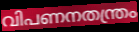
വിപണനതന്ത്രം